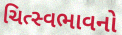
ચિત્સ્વભાવનો